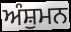
ਅੰਸ਼ੁਮਨ